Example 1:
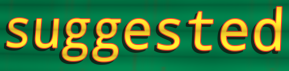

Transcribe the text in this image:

suggested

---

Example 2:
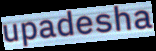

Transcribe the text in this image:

upadesha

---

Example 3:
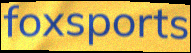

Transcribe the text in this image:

foxsports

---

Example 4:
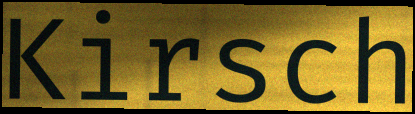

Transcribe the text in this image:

Kirsch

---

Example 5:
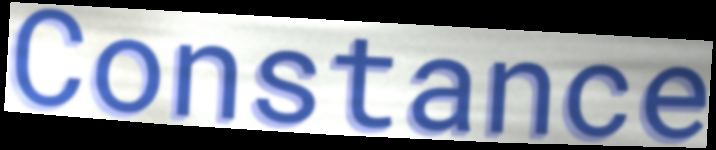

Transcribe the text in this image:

Constance